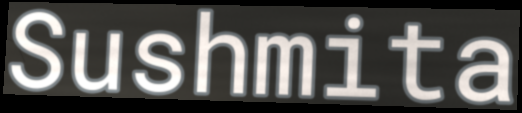
Sushmita